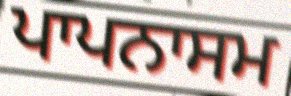
ਪਾਪਨਾਸਮ